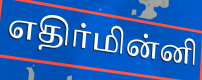
எதிர்மின்னி